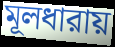
মূলধারায়